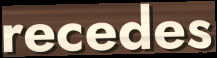
recedes